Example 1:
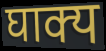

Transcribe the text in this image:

घाक्य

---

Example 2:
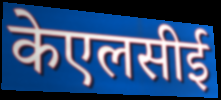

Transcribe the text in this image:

केएलसीई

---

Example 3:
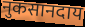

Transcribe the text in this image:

नुकसानदाय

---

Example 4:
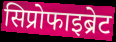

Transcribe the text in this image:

सिप्रोफाइब्रेट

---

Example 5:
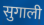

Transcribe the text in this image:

सुगाली